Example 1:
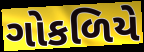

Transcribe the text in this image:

ગોકળિયે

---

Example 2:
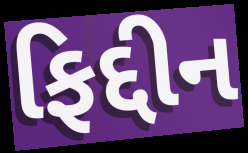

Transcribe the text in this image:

ફિદ્દીન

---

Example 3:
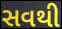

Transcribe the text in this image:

સવથી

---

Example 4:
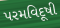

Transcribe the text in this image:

પરમવિદૂષી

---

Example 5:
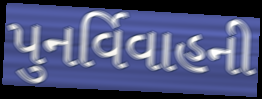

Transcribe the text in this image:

પુનર્વિવાહની